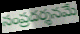
సంప్రదర్శనమే